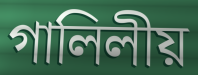
গালিলীয়